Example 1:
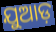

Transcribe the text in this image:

ଯୁଆଡ଼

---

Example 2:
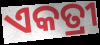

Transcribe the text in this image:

ଏକତ୍ରୀ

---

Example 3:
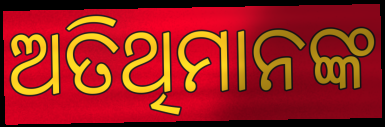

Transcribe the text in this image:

ଅତିଥିମାନଙ୍କ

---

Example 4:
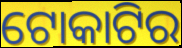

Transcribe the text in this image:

ଟୋକାଟିର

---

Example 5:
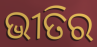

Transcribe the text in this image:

ଭୀତିର